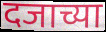
दजाच्या